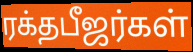
ரக்தபீஜர்கள்